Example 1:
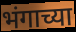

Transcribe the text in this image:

भंगाच्या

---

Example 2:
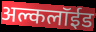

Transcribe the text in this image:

अल्कलॉईड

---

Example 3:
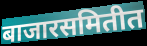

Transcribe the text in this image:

बाजारसमितीत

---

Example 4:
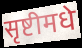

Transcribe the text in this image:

सृष्टीमधे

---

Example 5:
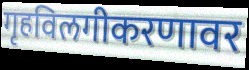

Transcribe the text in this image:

गृहविलगीकरणावर